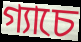
গ্যাচে